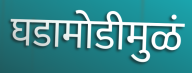
घडामोडीमुळं